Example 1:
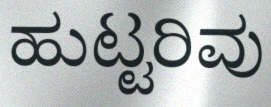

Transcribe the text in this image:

ಹುಟ್ಟರಿವು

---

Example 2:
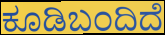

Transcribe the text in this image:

ಕೂಡಿಬಂದಿದೆ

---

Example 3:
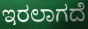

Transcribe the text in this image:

ಇರಲಾಗದೆ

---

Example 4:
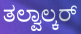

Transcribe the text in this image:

ತಲ್ವಾಲ್ಕರ್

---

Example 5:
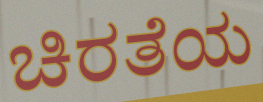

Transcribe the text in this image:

ಚಿರತೆಯ